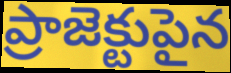
ప్రాజెక్టుపైన